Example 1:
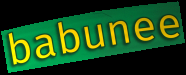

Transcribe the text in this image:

babunee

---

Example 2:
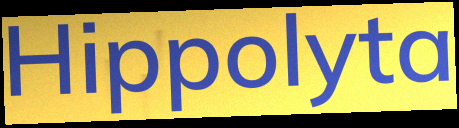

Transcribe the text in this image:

Hippolyta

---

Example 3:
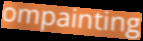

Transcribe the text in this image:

ompainting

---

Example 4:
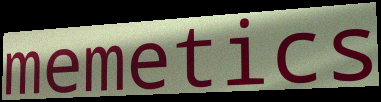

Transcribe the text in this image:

memetics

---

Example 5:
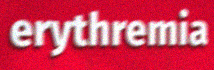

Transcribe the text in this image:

erythremia